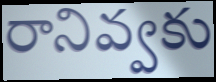
రానివ్వకు